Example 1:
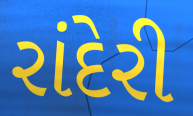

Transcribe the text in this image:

રાંદેરી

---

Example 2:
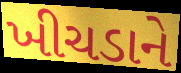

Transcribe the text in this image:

ખીચડાને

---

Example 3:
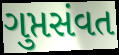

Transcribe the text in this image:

ગુપ્તસંવત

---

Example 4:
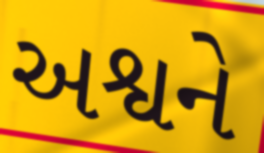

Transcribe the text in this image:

અશ્વને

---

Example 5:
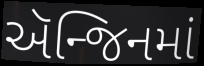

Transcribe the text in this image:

ઍન્જિનમાં